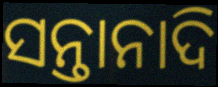
ସନ୍ତାନାଦି